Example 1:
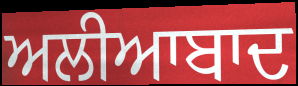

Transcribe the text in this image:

ਅਲੀਆਬਾਦ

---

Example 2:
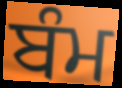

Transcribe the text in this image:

ਬੰਮ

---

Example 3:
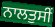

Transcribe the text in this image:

ਨਾਲਤੁਸੀਂ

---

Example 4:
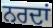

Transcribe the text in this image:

ਨਰਦਾਂ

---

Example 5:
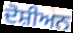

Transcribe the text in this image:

ਦੋਸ਼ੀਅਨ